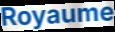
Royaume